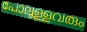
പോലുള്ളവരും